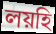
লয়হি